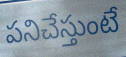
పనిచేస్తుంటే